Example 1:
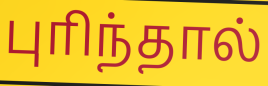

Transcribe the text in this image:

புரிந்தால்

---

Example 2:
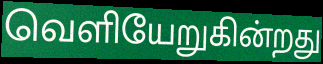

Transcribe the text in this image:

வெளியேறுகின்றது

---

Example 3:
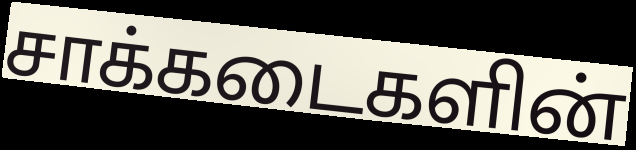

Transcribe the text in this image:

சாக்கடைகளின்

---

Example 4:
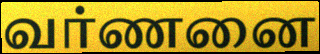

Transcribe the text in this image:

வர்ணனை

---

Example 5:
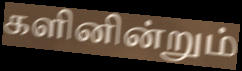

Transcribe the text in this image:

களினின்றும்